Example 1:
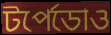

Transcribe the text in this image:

টর্পেডোও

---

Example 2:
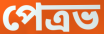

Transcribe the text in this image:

পেত্রভ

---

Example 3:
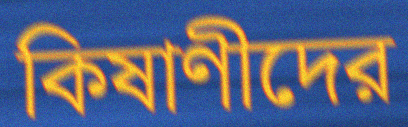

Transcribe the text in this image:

কিষাণীদের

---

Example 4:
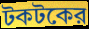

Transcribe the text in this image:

টকটকের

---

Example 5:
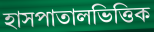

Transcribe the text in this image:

হাসপাতালভিত্তিক